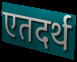
एतदर्थ